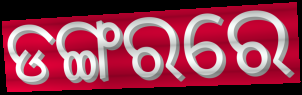
ଡଙ୍ଗରରେ